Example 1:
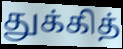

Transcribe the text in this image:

துக்கித்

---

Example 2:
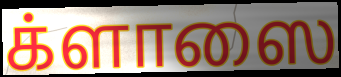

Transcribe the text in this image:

க்ளாஸை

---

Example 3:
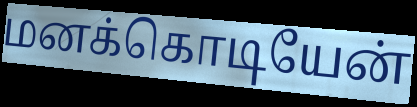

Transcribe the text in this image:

மனக்கொடியேன்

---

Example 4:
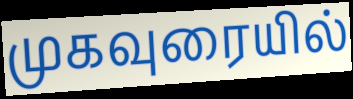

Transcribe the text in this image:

முகவுரையில்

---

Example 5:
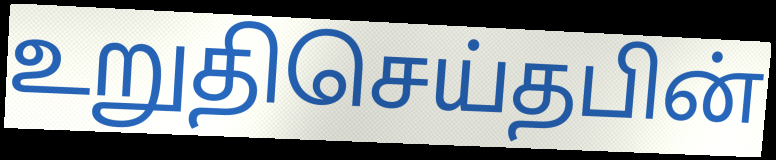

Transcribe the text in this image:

உறுதிசெய்தபின்